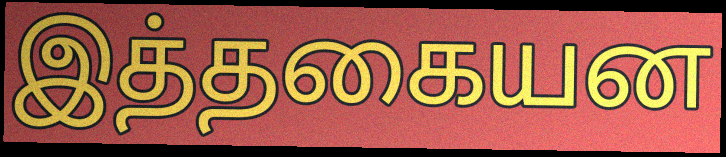
இத்தகையன